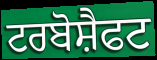
ਟਰਬੋਸ਼ੈਫਟ